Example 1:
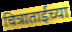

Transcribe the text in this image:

चित्राताईंच्या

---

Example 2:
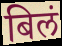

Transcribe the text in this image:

बिलं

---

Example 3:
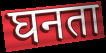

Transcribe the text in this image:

घनता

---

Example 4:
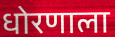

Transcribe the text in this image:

धोरणाला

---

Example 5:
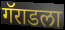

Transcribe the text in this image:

गॅराडला